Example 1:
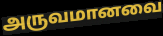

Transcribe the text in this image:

அருவமானவை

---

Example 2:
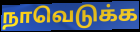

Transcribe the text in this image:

நாவெடுக்க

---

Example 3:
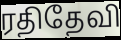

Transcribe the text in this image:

ரதிதேவி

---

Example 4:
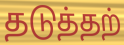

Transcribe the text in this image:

தடுத்தற்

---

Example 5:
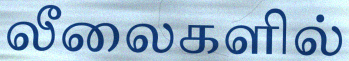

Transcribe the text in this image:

லீலைகளில்